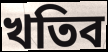
খতিব